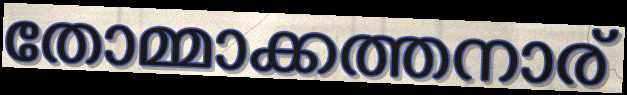
തോമ്മാക്കത്തനാര്